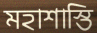
মহাশাস্তি